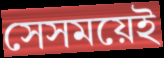
সেসময়েই